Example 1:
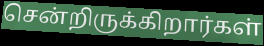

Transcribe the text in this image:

சென்றிருக்கிறார்கள்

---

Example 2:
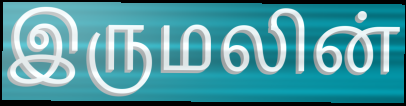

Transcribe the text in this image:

இருமலின்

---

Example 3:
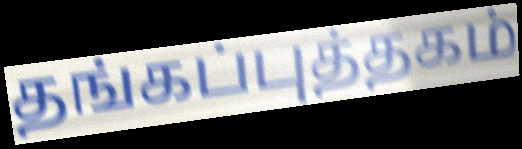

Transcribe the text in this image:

தங்கப்புத்தகம்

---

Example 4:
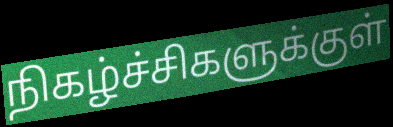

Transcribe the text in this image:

நிகழ்ச்சிகளுக்குள்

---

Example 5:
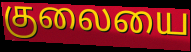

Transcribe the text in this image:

குலையை